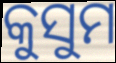
କୁସୁମ